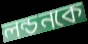
লন্ডনকে